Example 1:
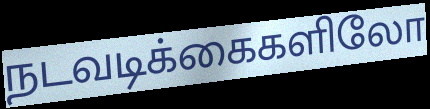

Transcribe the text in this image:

நடவடிக்கைகளிலோ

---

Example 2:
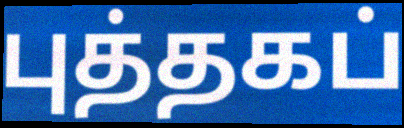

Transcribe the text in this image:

புத்தகப்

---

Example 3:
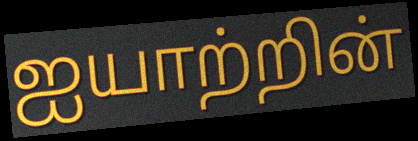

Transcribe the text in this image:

ஐயாற்றின்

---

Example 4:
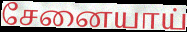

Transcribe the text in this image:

சேனையாய்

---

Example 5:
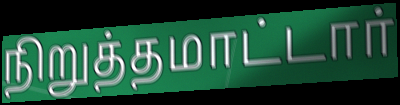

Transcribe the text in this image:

நிறுத்தமாட்டார்